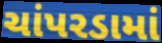
ચાંપરડામાં